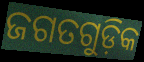
ଜଗତଗୁଡ଼ିକ